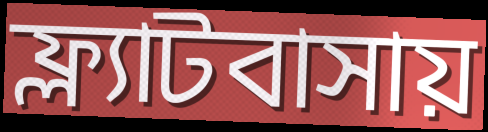
ফ্ল্যাটবাসায়